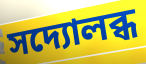
সদ্যোলব্ধ